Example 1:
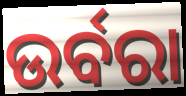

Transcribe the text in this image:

ଉର୍ବରା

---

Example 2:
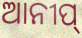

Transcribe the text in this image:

ଆନୀପ୍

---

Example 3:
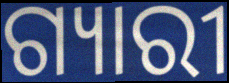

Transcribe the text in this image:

ଗ୍ୟାରୀ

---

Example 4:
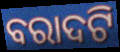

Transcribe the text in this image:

ବରାଦଟି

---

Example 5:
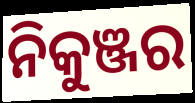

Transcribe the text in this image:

ନିକୁଞ୍ଜର